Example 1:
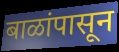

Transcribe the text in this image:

बाळांपासून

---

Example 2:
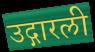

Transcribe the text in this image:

उद्गारली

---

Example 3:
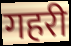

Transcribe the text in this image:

गहरी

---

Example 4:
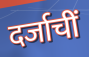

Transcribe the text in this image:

दर्जाचीं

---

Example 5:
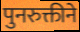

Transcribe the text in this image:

पुनरुक्तीने